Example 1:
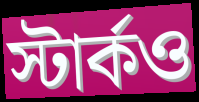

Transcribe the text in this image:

স্টার্কও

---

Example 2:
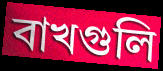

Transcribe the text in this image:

বাখগুলি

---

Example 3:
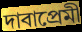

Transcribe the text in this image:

দাবাপ্রেমী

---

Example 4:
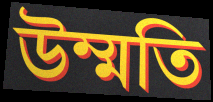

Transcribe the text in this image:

উম্মতি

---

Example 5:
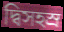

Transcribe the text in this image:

দ্বিসহস্র